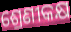
ଶ୍ରେଣୀକକ୍ଷ